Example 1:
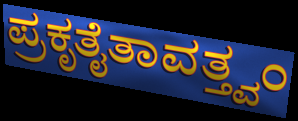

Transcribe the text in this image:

ಪ್ರಕೃತೈತಾವತ್ತ್ವಂ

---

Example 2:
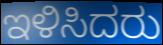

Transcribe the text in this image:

ಇಳಿಸಿದರು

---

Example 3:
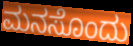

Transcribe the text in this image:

ಮನಸೊಂದು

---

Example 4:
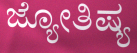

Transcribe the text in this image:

ಜ್ಯೋತಿಷ್ಯ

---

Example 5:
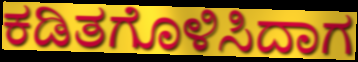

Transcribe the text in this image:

ಕಡಿತಗೊಳಿಸಿದಾಗ